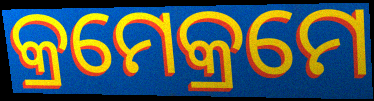
କ୍ରମେକ୍ରମେ